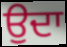
ਉਦਾ